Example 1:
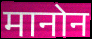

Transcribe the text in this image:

मानोन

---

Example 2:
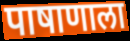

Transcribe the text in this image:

पाषाणाला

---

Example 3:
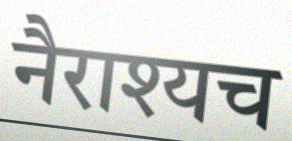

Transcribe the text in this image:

नैराश्यच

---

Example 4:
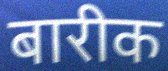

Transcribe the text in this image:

बारीक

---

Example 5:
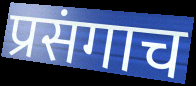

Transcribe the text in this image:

प्रसंगाच